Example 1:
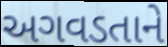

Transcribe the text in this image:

અગવડતાને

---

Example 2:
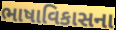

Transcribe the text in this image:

ભાષાવિકાસના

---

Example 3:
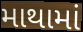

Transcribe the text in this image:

માથામાં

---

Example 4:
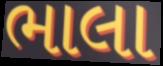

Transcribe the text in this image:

ભાલા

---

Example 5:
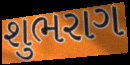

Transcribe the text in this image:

શુભરાગ